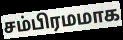
சம்பிரமமாக